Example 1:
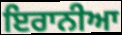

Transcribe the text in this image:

ਇਰਾਨੀਆ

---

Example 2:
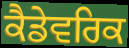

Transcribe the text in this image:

ਕੈਡੇਵਰਿਕ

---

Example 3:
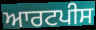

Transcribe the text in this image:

ਆਰਟਪੀਸ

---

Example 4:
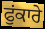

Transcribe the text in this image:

ਫੁਂਕਾਰੇ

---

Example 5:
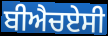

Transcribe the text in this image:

ਬੀਐਚਏਸੀ